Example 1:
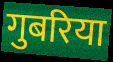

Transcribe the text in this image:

गुबरिया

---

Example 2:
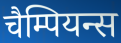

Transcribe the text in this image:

चैम्पियन्स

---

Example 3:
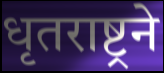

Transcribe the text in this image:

धृतराष्ट्रने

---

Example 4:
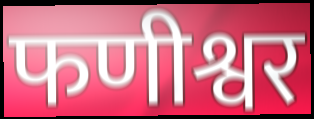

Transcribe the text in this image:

फणीश्वर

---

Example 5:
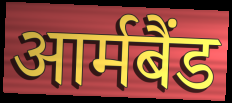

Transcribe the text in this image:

आर्मबैंड